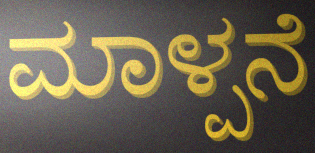
ಮಾಳ್ಪನೆ